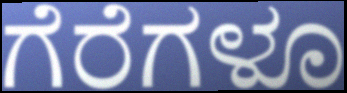
ಗೆರೆಗಳೂ